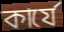
কার্যে